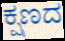
ಕ್ಷಣದ